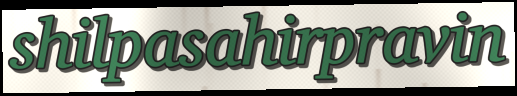
shilpasahirpravin